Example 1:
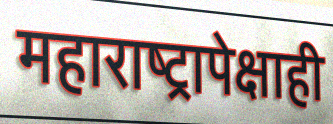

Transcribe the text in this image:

महाराष्ट्रापेक्षाही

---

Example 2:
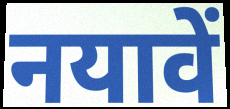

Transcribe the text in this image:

नयावें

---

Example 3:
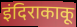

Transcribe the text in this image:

इंदिराकाकू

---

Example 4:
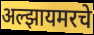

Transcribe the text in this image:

अल्झायमरचे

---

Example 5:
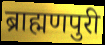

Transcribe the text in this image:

ब्राह्मणपुरी